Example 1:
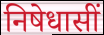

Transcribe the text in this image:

निषेधासीं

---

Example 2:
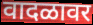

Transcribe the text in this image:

वादळावर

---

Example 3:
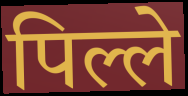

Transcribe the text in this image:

पिल्ले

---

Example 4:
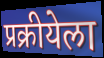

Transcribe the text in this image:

प्रक्रीयेला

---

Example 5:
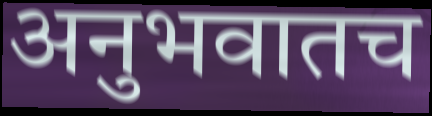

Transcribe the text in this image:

अनुभवातच